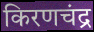
किरणचंद्र